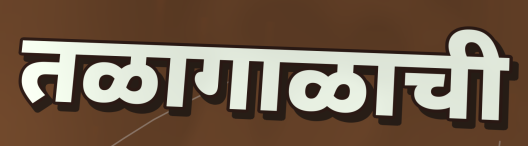
तळागाळाची